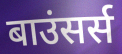
बाउंसर्स